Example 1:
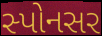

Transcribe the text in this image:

સ્પોનસર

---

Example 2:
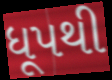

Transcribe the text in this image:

ધૂપથી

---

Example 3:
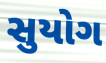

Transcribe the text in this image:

સુયોગ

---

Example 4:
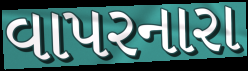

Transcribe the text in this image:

વાપરનારા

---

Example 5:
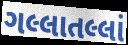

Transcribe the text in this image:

ગલ્લાતલ્લાં